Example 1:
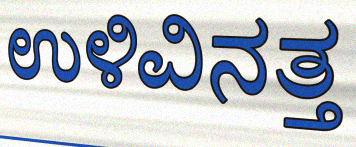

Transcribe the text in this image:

ಉಳಿವಿನತ್ತ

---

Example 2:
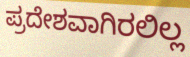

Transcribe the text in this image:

ಪ್ರದೇಶವಾಗಿರಲಿಲ್ಲ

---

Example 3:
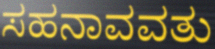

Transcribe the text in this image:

ಸಹನಾವವತು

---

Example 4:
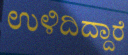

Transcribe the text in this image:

ಉಳಿದಿದ್ದಾರೆ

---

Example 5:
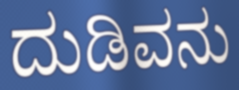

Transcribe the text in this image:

ದುಡಿವನು